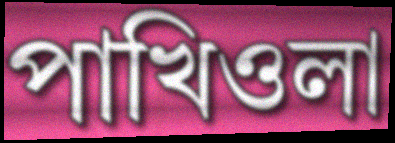
পাখিওলা